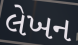
લેખન